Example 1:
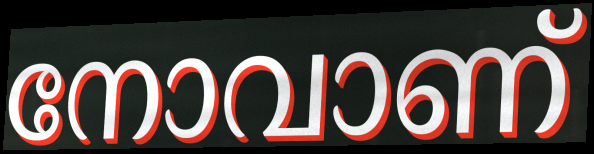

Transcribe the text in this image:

നോവാണ്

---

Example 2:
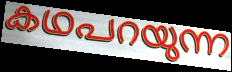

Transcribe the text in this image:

കഥപറയുന്ന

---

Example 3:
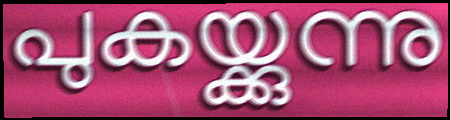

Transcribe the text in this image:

പുകയ്ക്കുന്നു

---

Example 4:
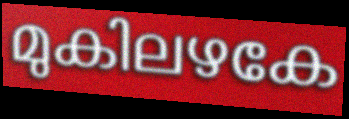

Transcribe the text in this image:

മുകിലഴകേ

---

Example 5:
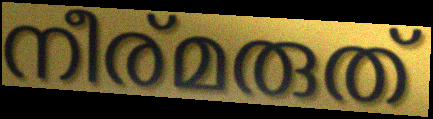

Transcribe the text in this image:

നീര്മരുത്